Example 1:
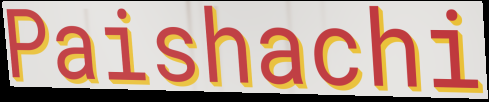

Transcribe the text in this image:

Paishachi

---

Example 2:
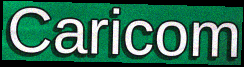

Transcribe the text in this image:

Caricom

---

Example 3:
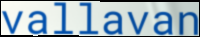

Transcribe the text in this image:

vallavan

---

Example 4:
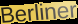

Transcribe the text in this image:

Berliner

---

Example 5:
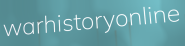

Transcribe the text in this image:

warhistoryonline